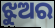
ଝୁଅର